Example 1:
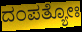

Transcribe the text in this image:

ದಂಪತ್ಯೋಃ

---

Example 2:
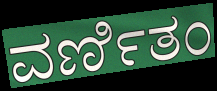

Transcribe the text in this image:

ವರ್ಣಿತಂ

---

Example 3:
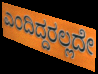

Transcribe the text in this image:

ಎಂದಿದ್ದರಲ್ಲದೇ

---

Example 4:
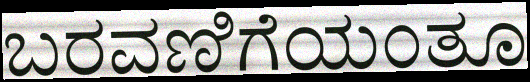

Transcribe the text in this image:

ಬರವಣಿಗೆಯಂತೂ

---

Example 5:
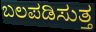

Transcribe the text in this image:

ಬಲಪಡಿಸುತ್ತ